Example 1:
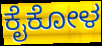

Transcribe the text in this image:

ಕೈಕೋಳ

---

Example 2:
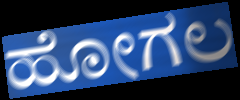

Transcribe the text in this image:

ಹೋಗಲ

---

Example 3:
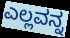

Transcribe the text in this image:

ಎಲ್ಲವನ್ನ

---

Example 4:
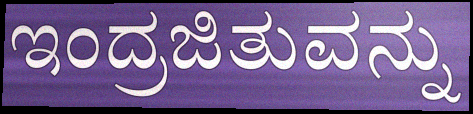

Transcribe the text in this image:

ಇಂದ್ರಜಿತುವನ್ನು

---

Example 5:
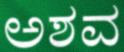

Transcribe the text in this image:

ಅಶವ